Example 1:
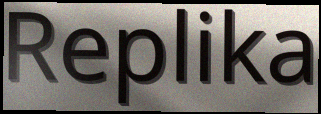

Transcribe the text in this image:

Replika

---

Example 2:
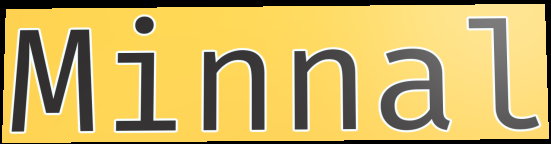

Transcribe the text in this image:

Minnal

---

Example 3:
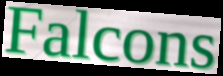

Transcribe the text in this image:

Falcons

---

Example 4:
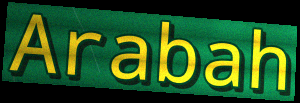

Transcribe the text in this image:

Arabah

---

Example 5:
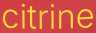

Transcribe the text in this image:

citrine